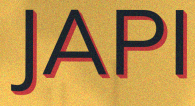
JAPI